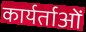
कार्यर्ताओं